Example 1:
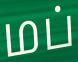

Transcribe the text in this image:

மப்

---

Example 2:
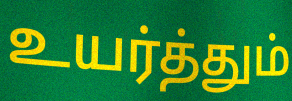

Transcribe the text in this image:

உயர்த்தும்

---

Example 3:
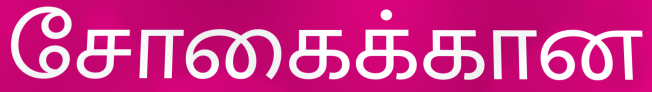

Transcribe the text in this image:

சோகைக்கான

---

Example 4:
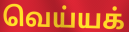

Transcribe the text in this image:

வெய்யக்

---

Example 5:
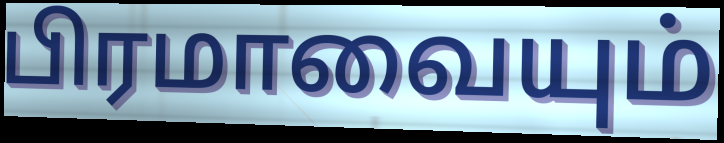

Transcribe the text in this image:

பிரமாவையும்